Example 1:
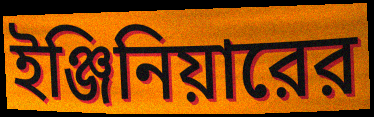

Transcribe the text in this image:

ইঞ্জিনিয়ারের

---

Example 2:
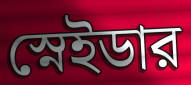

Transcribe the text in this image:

স্নেইডার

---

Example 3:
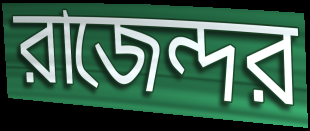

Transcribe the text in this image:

রাজেন্দর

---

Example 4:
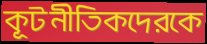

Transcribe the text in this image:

কূটনীতিকদেরকে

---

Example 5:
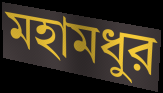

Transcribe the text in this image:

মহামধুর